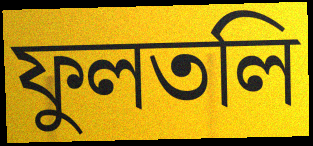
ফুলতলি